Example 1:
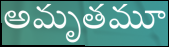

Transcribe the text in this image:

అమృతమూ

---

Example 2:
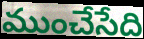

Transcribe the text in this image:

ముంచేసేది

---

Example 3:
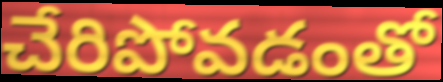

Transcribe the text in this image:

చేరిపోవడంతో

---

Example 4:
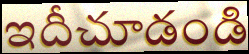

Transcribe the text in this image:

ఇదీచూడండి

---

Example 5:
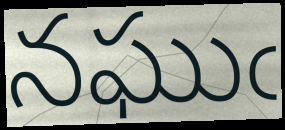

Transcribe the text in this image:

నఘుఁ